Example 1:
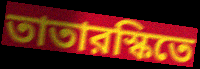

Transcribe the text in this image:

তাতারস্কিতে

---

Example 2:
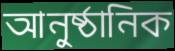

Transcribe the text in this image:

আনুষ্ঠানিক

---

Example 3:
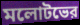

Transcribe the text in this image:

মলোটভের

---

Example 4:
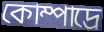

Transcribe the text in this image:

কোম্পাদ্রে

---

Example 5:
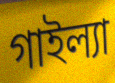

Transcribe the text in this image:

গাইল্যা